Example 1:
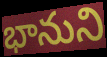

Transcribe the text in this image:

భానుని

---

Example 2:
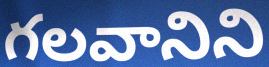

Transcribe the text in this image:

గలవానిని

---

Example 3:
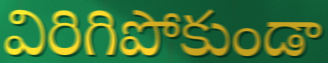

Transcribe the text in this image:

విరిగిపోకుండా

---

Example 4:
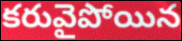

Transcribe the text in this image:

కరువైపోయిన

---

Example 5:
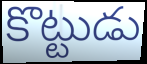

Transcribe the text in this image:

కొట్టుడు